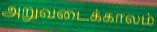
அறுவடைக்காலம்